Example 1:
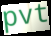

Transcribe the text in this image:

pvt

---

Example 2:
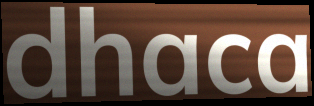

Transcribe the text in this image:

dhaca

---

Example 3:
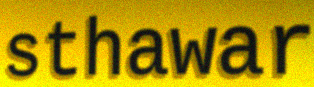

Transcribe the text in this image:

sthawar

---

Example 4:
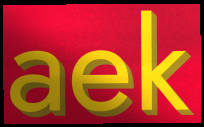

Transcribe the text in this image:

aek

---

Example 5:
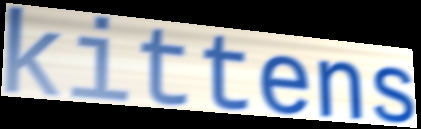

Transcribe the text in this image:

kittens